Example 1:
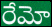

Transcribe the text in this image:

రేమో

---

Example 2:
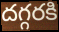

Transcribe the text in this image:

దగ్గరకి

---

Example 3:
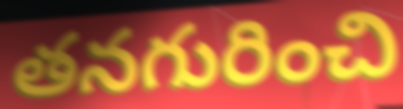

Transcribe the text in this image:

తనగురించి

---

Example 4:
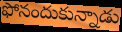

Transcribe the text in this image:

ఫోనందుకున్నాడు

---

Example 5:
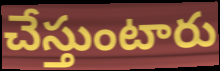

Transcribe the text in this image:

చేస్తుంటారు